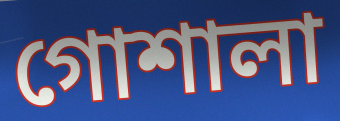
গোশালা